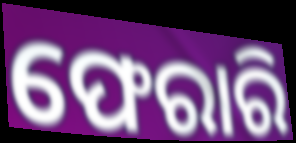
ଫେରାରି